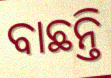
ବାଛନ୍ତି